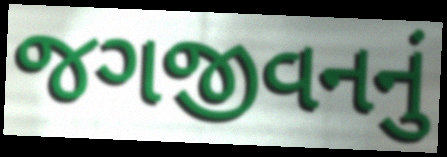
જગજીવનનું